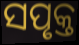
ସପୃକ୍ତ